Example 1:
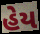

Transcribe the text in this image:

હેય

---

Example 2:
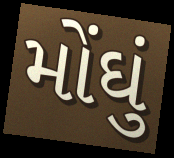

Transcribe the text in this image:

મોંઘું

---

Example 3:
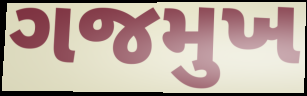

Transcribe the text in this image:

ગજમુખ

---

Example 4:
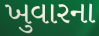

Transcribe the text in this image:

ખુવારના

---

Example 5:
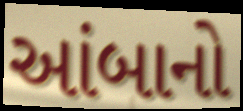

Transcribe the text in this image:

આંબાનો